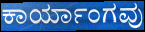
ಕಾರ್ಯಾಂಗವು